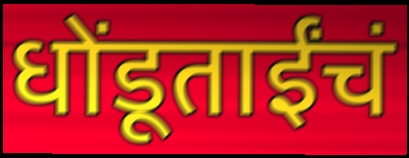
धोंडूताईंचं